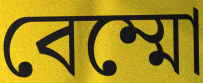
বেম্মো